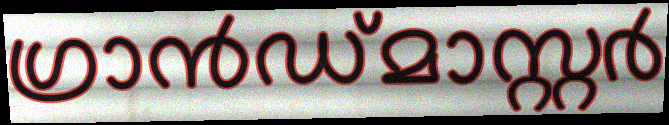
ഗ്രാൻഡ്മാസ്റ്റർ